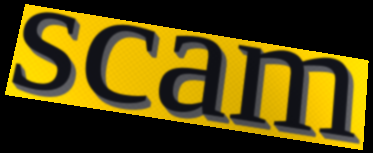
scam